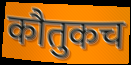
कौतुकच